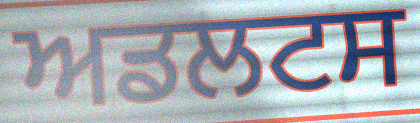
ਅਡਲਟਸ